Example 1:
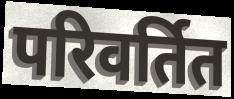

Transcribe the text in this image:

परिवर्तित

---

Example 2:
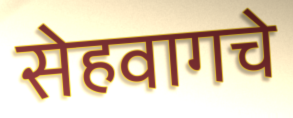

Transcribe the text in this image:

सेहवागचे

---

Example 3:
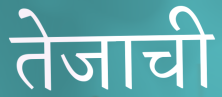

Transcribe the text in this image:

तेजाची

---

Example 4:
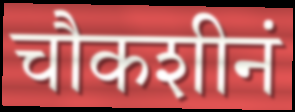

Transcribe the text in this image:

चौकशीनं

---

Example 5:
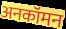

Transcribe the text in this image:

अनकॉमन